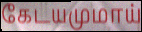
கேடயமுமாய்